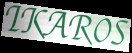
IKAROS